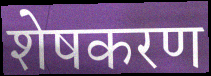
शेषकरण